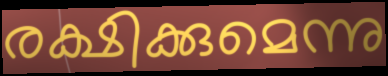
രക്ഷിക്കുമെന്നു